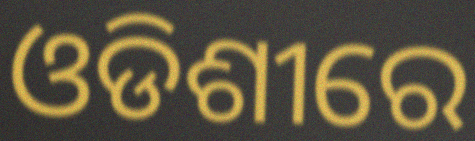
ଓଡିଶୀରେ